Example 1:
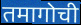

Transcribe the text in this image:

तमागोची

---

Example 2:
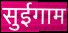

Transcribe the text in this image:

सुईगाम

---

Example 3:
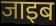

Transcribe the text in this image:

जाइब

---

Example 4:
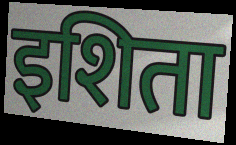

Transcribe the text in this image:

इशिता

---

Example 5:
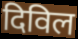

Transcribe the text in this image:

दिविल